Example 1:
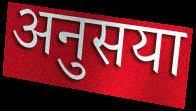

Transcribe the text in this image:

अनुसया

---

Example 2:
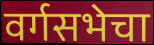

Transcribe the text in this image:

वर्गसभेचा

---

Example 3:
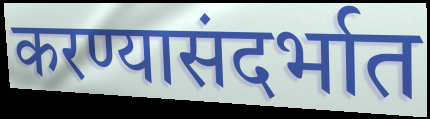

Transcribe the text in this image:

करण्यासंदर्भात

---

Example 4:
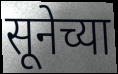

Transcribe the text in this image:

सूनेच्या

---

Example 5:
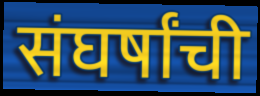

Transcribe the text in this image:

संघर्षांची